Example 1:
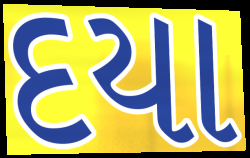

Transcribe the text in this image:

દયા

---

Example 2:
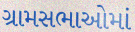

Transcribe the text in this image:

ગ્રામસભાઓમાં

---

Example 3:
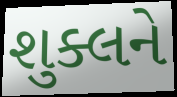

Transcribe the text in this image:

શુક્લને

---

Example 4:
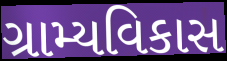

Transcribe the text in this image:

ગ્રામ્યવિકાસ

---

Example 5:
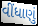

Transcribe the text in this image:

વીંધાણું